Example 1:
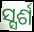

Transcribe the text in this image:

ସ୍ସର୍ଶ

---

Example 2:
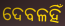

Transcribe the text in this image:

ଦେବଳହିଁ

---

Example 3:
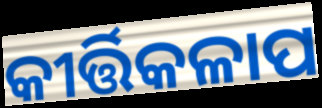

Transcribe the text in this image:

କୀର୍ତ୍ତିକଳାପ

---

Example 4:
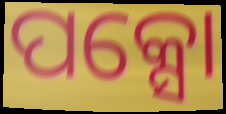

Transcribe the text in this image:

ପକ୍ସୋ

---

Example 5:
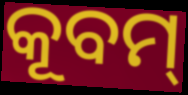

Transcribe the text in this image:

କୂବମ୍